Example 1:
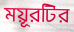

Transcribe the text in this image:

ময়ূরটির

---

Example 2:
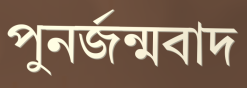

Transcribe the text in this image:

পুনর্জন্মবাদ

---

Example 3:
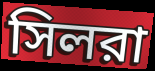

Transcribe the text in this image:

সিলরা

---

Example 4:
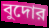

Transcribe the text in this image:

বুদোর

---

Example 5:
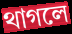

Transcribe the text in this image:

থাগলে